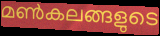
മൺകലങ്ങളുടെ